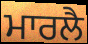
ਮਾਰਲੈ